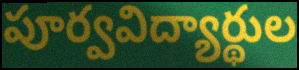
పూర్వవిద్యార్థుల